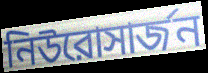
নিউরোসার্জন